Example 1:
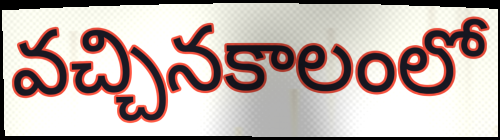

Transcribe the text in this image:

వచ్చినకాలంలో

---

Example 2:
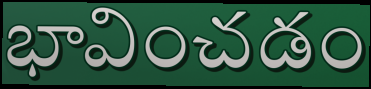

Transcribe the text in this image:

భావించడం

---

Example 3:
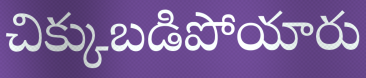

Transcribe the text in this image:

చిక్కుబడిపోయారు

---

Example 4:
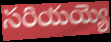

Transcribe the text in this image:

సరియయ్యె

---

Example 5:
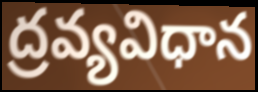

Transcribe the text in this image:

ద్రవ్యవిధాన